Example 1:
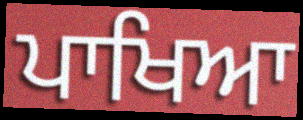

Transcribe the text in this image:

ਪਾਖਿਆ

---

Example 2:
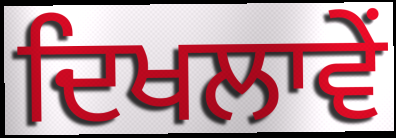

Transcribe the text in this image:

ਦਿਖਲਾਵੇਂ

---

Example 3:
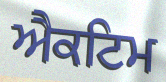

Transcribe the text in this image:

ਐਕਟਿਮ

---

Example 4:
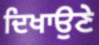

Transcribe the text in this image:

ਦਿਖਾਉਣੇ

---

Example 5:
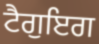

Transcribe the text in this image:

ਟੈਗੁਇਗ